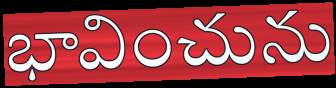
భావించును